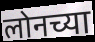
लोनच्या